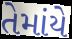
તેમાંયે